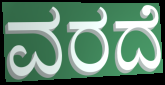
ವರದೆ